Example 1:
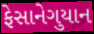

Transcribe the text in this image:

ફેસાનેગુયાન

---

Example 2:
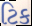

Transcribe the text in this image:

ટિક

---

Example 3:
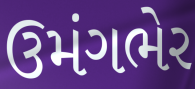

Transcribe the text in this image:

ઉમંગભેર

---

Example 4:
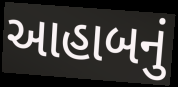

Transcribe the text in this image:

આહાબનું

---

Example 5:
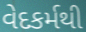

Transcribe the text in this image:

વેદકર્મથી